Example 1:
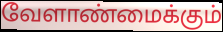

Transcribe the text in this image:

வேளாண்மைக்கும்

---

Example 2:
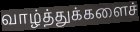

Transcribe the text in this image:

வாழ்த்துக்களைச்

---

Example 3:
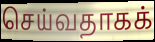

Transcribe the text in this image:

செய்வதாகக்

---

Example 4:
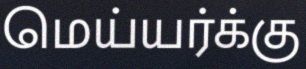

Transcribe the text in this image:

மெய்யர்க்கு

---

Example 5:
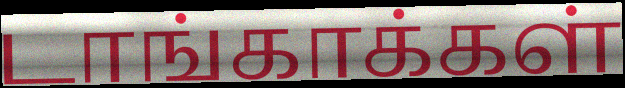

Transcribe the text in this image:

டாங்காக்கள்